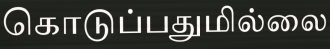
கொடுப்பதுமில்லை